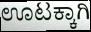
ಊಟಕ್ಕಾಗಿ